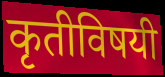
कृतीविषयी